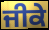
ਜੀਕੇ